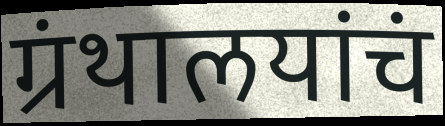
ग्रंथालयांचं